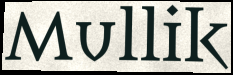
Mullik